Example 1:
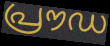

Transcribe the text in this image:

പ്രൗഡ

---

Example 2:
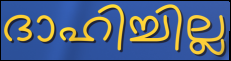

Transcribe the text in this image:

ദാഹിച്ചില്ല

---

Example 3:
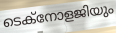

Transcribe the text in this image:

ടെക്നോളജിയും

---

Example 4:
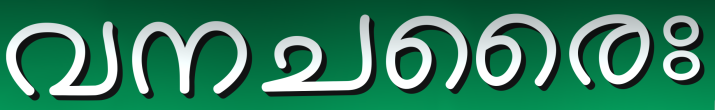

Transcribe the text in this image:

വനചരൈഃ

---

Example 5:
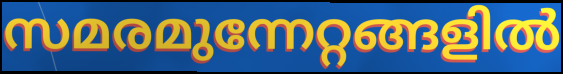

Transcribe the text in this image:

സമരമുന്നേറ്റങ്ങളിൽ